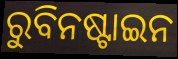
ରୁବିନଷ୍ଟାଇନ